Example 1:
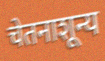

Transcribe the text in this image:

चेतनाशून्य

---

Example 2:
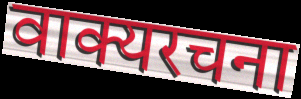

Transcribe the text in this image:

वाक्यरचना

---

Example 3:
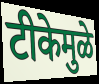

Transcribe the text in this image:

टीकेमुळे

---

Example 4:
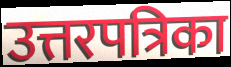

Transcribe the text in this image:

उत्तरपत्रिका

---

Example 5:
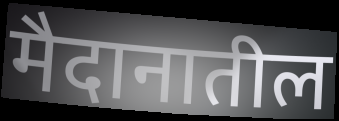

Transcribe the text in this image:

मैदानातील